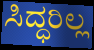
ಸಿದ್ಧರಿಲ್ಲ